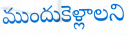
ముందుకెళ్లాలని